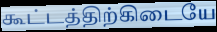
கூட்டத்திற்கிடையே